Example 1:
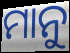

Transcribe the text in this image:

ମାନୁ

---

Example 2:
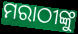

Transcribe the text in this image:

ମରାଠୀଙ୍କୁ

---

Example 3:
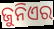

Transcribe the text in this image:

ଜୁନିଏର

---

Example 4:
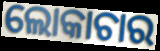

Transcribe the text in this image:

ଲୋକାଚାର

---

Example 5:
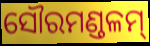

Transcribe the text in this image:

ସୌରମଣ୍ଡଳମ୍